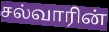
சல்வாரின்